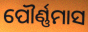
ପୌର୍ଣ୍ଣମାସ